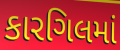
કારગિલમાં